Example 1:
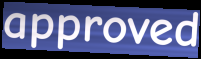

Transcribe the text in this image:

approved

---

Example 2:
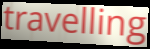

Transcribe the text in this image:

travelling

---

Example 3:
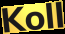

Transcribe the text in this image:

Koll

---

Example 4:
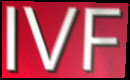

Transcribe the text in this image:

IVF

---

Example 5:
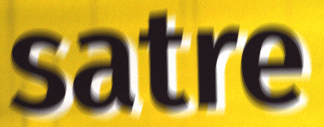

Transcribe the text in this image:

satre